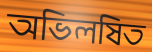
অভিলষিত